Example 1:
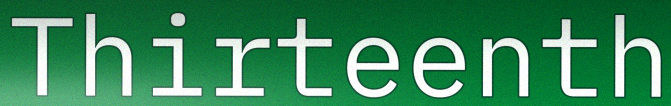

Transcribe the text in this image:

Thirteenth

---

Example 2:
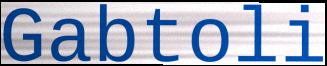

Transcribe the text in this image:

Gabtoli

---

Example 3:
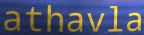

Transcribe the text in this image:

athavla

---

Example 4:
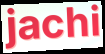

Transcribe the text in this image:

jachi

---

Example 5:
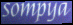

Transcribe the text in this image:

sompya